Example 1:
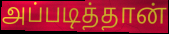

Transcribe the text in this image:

அப்படித்தான்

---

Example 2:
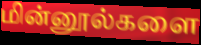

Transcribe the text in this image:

மின்னூல்களை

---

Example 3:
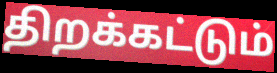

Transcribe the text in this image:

திறக்கட்டும்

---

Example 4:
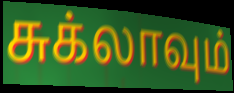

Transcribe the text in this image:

சுக்லாவும்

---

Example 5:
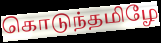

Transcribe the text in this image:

கொடுந்தமிழே